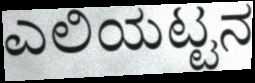
ಎಲಿಯಟ್ಟನ